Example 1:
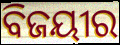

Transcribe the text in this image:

ବିଜୟୀର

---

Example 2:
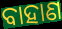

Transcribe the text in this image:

ବାହାଣ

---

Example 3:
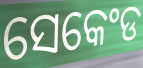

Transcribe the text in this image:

ସେକେଂଡ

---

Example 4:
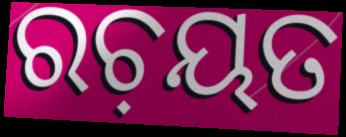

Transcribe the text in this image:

ରଚ଼ୟତ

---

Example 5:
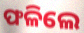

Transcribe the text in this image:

ଫଳିଲେ